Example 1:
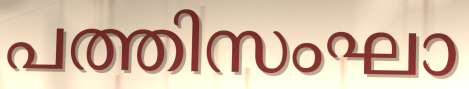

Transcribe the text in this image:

പത്തിസംഘാ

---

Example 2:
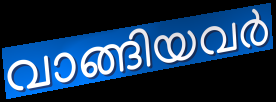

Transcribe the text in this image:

വാങ്ങിയവർ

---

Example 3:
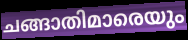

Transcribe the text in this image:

ചങ്ങാതിമാരെയും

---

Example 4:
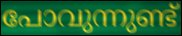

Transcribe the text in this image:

പോവുന്നുണ്ട്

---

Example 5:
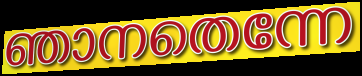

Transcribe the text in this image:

ഞാനതെന്നേ